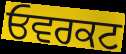
ਓਵਰਕਟ